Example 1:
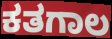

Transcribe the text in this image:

ಕತಗಾಲ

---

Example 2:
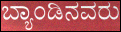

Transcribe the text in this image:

ಬ್ಯಾಂಡಿನವರು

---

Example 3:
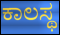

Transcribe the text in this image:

ಕಾಲಸ್ಥ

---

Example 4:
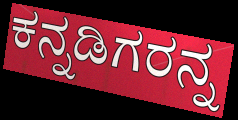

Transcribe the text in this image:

ಕನ್ನಡಿಗರನ್ನ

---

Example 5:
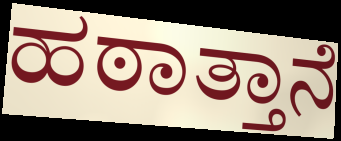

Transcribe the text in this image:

ಹಠಾತ್ತಾನೆ